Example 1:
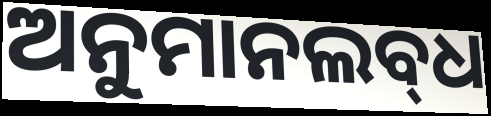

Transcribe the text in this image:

ଅନୁମାନଲବ୍‌ଧ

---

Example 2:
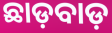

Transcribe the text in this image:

ଛାଡ଼ବାଡ଼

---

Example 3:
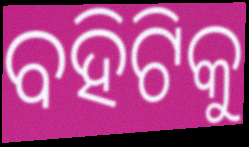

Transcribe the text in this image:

ବହିଟିକୁ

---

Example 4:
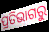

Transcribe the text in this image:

ପ୍ରତିଭାଗରୁ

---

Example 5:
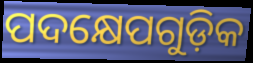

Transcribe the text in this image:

ପଦକ୍ଷେପଗୁଡ଼ିକ